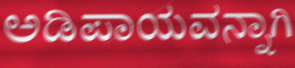
ಅಡಿಪಾಯವನ್ನಾಗಿ